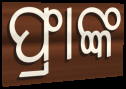
ଫ୍ରାଙ୍କ